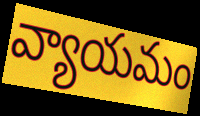
వ్యాయమం